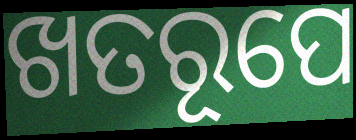
ଖତରୂପେ